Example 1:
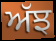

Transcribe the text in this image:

ਅੱਝ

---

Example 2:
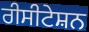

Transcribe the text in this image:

ਰੀਸੀਟੇਸ਼ਨ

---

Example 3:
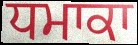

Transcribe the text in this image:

ਧਮਾਕਾ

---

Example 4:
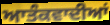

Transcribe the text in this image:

ਆਤੰਕਵਾਦੀਆਂ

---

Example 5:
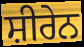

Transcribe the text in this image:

ਸ਼ੀਰੇਨ